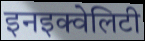
इनइक्वेलिटी